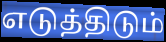
எடுத்திடும்